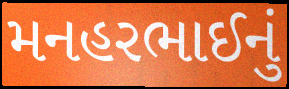
મનહરભાઈનું